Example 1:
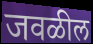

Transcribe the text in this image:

जवळील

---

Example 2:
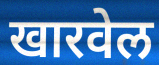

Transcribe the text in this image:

खारवेल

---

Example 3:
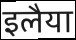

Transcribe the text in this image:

इलैया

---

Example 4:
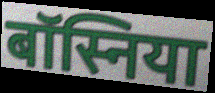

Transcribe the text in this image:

बॉस्निया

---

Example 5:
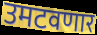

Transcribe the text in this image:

उमटवणार